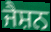
ਜੈਸ਼ਨ